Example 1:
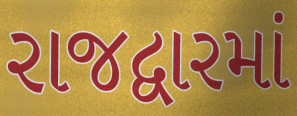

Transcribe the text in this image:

રાજદ્વારમાં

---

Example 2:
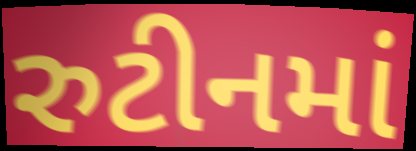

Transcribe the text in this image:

રુટીનમાં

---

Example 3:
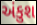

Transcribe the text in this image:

અંકુશ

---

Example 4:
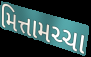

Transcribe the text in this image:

મિત્તામચ્ચા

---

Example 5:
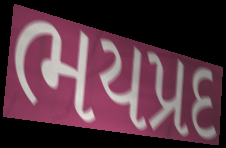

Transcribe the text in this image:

ભયપ્રદ